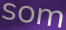
som